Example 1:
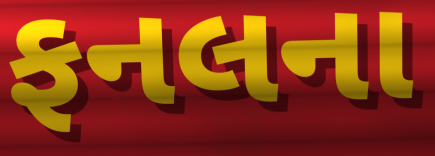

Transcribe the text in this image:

ફનલના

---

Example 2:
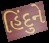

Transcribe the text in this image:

હિંદુને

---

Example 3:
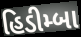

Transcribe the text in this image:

હિડીમ્બા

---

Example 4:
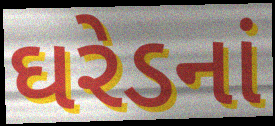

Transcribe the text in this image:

ઘરેડનાં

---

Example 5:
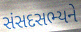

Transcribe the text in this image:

સંસદસભ્યને